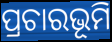
ପ୍ରଚାରଭୂମି